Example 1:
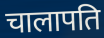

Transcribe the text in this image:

चालापति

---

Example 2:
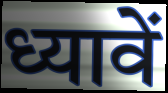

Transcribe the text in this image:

ध्यावें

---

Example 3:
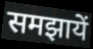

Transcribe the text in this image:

समझायें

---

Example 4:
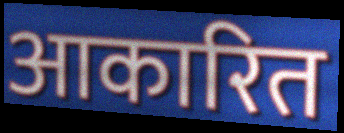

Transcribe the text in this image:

आकारित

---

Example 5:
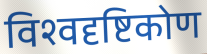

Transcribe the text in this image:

विश्वदृष्टिकोण